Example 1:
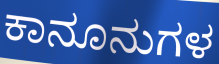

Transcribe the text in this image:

ಕಾನೂನುಗಳ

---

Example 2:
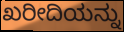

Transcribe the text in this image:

ಖರೀದಿಯನ್ನು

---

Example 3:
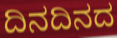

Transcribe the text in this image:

ದಿನದಿನದ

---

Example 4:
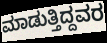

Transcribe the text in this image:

ಮಾಡುತ್ತಿದ್ದವರ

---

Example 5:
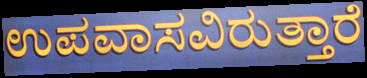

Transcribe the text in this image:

ಉಪವಾಸವಿರುತ್ತಾರೆ